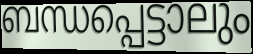
ബന്ധപ്പെട്ടാലും